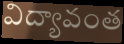
విద్యావంత